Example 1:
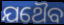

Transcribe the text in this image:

ଯଥୈବ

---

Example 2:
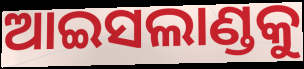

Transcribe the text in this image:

ଆଇସଲାଣ୍ଡକୁ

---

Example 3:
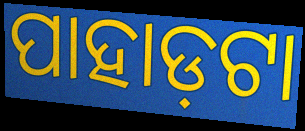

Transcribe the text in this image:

ପାହାଡ଼ଟା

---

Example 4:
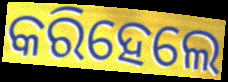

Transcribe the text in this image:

କରିହେଲେ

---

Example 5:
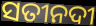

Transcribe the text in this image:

ସତୀନଦୀ